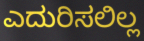
ಎದುರಿಸಲಿಲ್ಲ